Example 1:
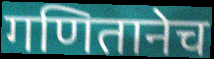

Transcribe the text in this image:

गणितानेच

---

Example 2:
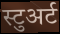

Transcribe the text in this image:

स्टुअर्ट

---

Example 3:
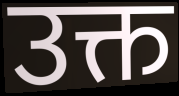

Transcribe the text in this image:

उक्त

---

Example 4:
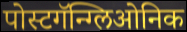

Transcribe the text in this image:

पोस्टगॅन्ग्लिओनिक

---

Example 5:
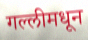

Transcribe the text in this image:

गल्लीमधून